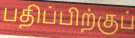
பதிப்பிற்குப்